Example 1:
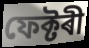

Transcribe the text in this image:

ফেক্টৰী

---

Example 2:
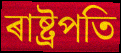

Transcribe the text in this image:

ৰাষ্ট্ৰপতি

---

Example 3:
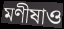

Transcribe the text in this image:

মণীষাও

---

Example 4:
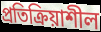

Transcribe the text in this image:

প্ৰতিক্ৰিয়াশীল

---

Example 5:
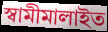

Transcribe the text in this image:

স্বামীমালাইত